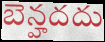
బెన్హదదు